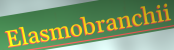
Elasmobranchii